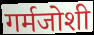
गर्मजोशी